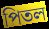
পিতল